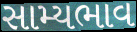
સામ્યભાવ